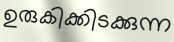
ഉരുകിക്കിടക്കുന്ന